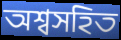
অশ্বসহিত